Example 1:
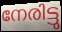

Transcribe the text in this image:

നേരിട്ടു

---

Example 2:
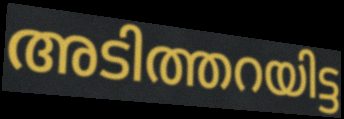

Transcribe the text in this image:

അടിത്തറയിട്ട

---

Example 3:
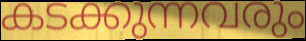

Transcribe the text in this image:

കടക്കുന്നവരും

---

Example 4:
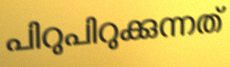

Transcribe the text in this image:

പിറുപിറുക്കുന്നത്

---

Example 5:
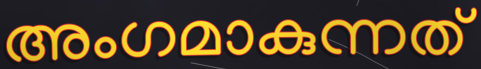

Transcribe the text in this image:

അംഗമാകുന്നത്